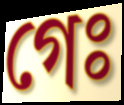
গেঃ